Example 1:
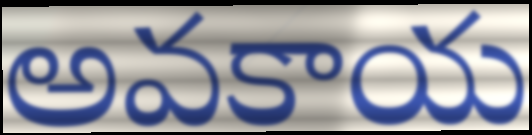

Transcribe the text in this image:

అవకాయ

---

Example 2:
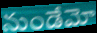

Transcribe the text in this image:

నుండేమో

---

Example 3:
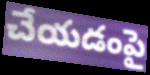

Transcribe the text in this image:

చేయడంపై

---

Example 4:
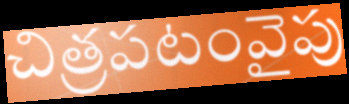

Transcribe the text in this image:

చిత్రపటంవైపు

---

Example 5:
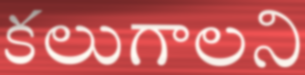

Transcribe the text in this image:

కలుగాలని